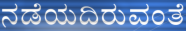
ನಡೆಯದಿರುವಂತೆ